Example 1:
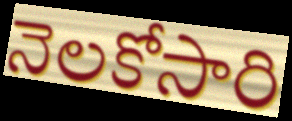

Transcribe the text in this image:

నెలకోసారి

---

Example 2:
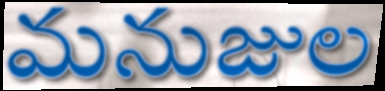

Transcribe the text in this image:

మనుజుల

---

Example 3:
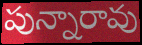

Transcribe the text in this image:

పున్నారావు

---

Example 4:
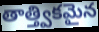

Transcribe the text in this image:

తాత్త్వికమైన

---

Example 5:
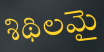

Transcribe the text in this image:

శిథిలమై